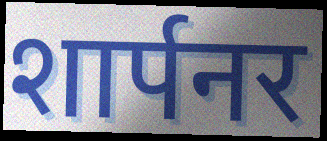
शार्पनर